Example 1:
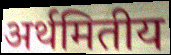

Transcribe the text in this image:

अर्थमितीय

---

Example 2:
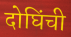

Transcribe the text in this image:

दोघिंची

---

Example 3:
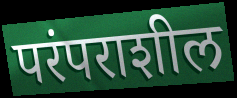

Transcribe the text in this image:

परंपराशील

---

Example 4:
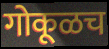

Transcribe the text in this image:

गोकूळच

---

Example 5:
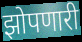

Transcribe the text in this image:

झोपणारी